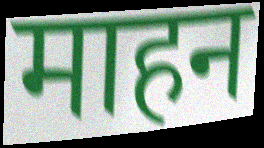
माहन